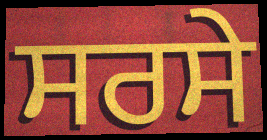
ਸਰਸੇ